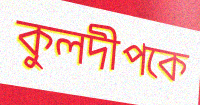
কুলদীপকে